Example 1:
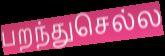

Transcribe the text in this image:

பறந்துசெல்ல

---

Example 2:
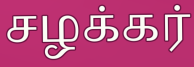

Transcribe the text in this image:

சழக்கர்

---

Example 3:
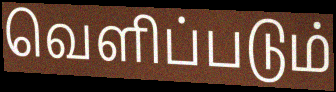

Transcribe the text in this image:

வெளிப்படும்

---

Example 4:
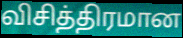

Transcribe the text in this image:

விசித்திரமான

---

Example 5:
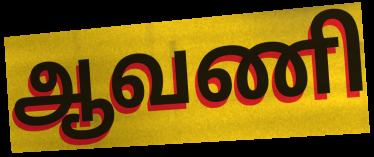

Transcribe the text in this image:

ஆவணி